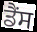
ਡੈਂਸ